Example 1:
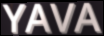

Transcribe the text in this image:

YAVA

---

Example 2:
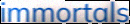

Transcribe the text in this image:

immortals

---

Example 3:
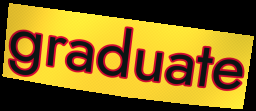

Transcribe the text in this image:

graduate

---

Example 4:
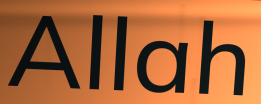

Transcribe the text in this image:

Allah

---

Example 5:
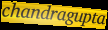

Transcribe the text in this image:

chandragupta